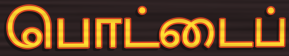
பொட்டைப்